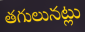
తగులునట్లు